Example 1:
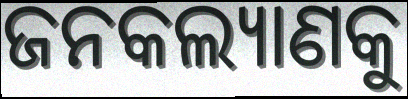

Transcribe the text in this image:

ଜନକଲ୍ୟାଣକୁ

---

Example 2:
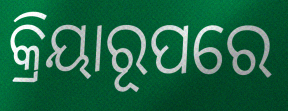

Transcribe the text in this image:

କ୍ରିୟାରୂପରେ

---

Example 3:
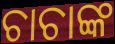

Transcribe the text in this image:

ଚାଚାଙ୍କ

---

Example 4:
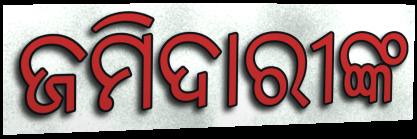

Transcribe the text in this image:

ଜମିଦାରୀଙ୍କ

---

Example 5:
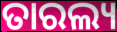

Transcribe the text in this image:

ତାରଲ୍ୟ